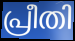
പ്രീതി